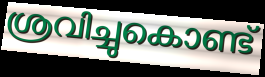
ശ്രവിച്ചുകൊണ്ട്